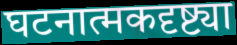
घटनात्मकदृष्ट्या